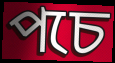
পচে